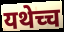
यथेच्च